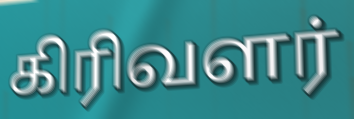
கிரிவளர்